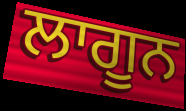
ਲਾਗੂਨ